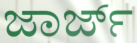
ಜಾರ್ಜ್